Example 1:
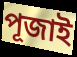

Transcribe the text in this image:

পূজাই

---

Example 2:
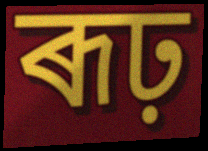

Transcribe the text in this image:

ৰূঢ়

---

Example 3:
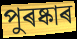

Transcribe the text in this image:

পুৰষ্কাৰ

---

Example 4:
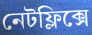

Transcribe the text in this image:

নেটফ্লিক্সে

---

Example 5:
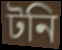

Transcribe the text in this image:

টনি